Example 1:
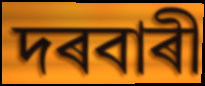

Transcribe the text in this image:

দৰবাৰী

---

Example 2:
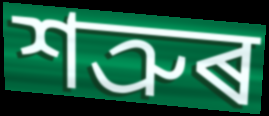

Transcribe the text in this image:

শত্ৰুৰ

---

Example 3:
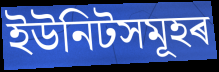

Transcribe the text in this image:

ইউনিটসমূহৰ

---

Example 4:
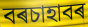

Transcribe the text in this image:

বৰচাহাবৰ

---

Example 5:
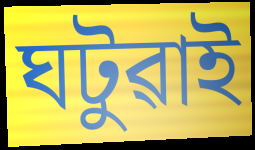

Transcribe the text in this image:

ঘটুৱাই